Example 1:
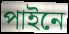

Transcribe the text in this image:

পাইনে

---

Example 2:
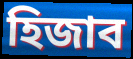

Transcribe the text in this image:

হিজাব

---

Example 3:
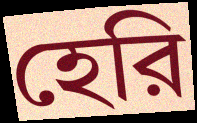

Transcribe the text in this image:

হেরি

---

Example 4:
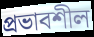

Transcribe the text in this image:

প্রভাবশীল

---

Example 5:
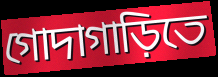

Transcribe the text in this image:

গোদাগাড়িতে